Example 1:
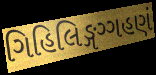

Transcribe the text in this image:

ગિહિલિઙ્ગગ્ગહણં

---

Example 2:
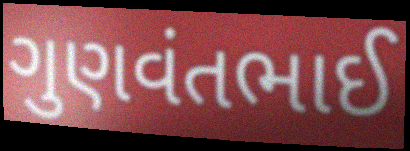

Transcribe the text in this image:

ગુણવંતભાઈ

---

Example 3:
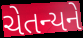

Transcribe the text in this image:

ચેતન્યને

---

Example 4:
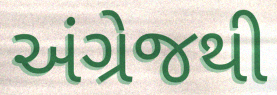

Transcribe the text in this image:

અંગ્રેજથી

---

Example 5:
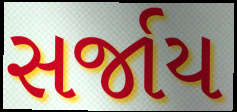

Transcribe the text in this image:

સર્જાય